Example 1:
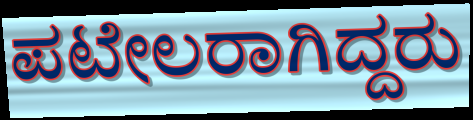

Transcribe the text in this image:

ಪಟೇಲರಾಗಿದ್ದರು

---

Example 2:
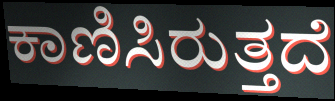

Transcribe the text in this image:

ಕಾಣಿಸಿರುತ್ತದೆ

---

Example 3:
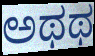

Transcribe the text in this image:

ಅಥಥ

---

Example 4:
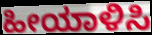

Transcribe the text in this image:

ಹೀಯಾಳಿಸಿ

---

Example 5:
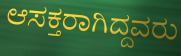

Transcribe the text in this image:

ಆಸಕ್ತರಾಗಿದ್ದವರು